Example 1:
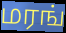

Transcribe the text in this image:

மரங்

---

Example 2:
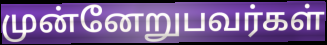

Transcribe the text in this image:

முன்னேறுபவர்கள்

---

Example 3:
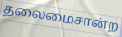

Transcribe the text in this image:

தலைமைசான்ற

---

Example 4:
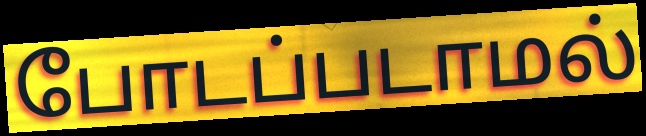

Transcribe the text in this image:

போடப்படாமல்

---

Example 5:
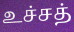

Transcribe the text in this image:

உச்சத்